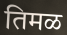
तिमळ